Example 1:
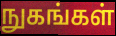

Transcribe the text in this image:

நுகங்கள்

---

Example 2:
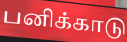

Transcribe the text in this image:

பனிக்காடு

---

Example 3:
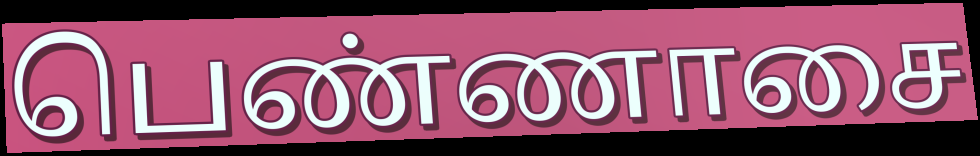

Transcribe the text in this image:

பெண்ணாசை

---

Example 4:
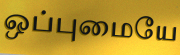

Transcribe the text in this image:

ஒப்புமையே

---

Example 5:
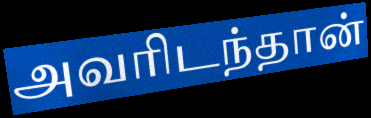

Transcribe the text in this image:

அவரிடந்தான்